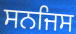
ਸਨਜਿਸ